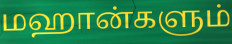
மஹான்களும்